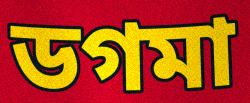
ডগমা